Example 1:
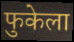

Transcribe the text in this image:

फुकेला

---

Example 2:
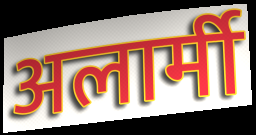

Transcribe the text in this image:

अलार्मी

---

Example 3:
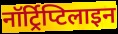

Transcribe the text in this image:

नॉर्ट्रिप्टिलाइन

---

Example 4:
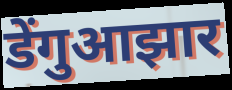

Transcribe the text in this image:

डेंगुआझार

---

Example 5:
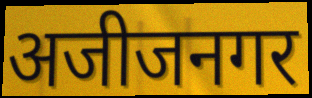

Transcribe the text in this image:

अजीजनगर